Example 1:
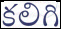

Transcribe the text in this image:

కలిగి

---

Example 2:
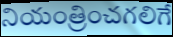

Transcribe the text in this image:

నియంత్రించగలిగే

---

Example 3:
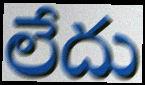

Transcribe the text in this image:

లేదు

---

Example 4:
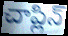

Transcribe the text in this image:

చాప్లిన్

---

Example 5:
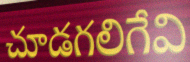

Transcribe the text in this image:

చూడగలిగేవి